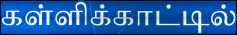
கள்ளிக்காட்டில்